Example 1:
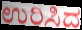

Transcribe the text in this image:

ಉರಿಸಿದ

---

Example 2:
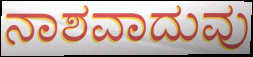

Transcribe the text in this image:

ನಾಶವಾದುವು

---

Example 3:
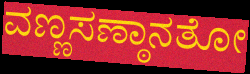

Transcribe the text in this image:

ವಣ್ಣಸಣ್ಠಾನತೋ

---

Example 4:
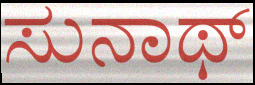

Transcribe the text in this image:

ಸುನಾಥ್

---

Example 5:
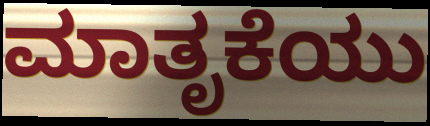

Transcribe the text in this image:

ಮಾತೃಕೆಯು